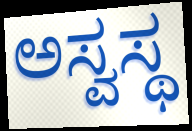
ಅಸ್ವಸ್ಥ